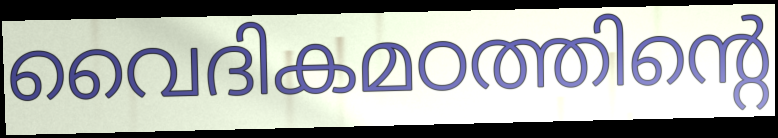
വൈദികമഠത്തിന്റെ